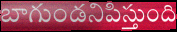
బాగుండనిపిస్తుంది